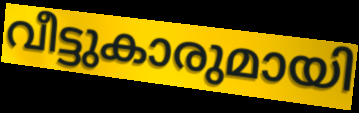
വീട്ടുകാരുമായി